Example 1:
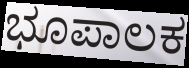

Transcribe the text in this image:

ಭೂಪಾಲಕ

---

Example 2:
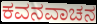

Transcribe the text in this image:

ಕವನವಾಚನ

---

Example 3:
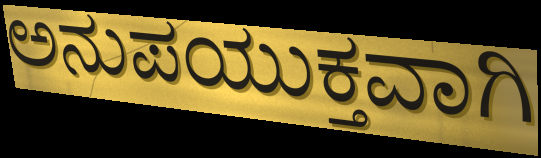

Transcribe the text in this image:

ಅನುಪಯುಕ್ತವಾಗಿ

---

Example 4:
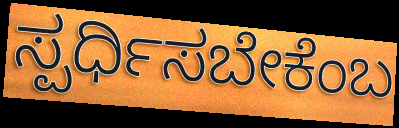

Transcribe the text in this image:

ಸ್ಪರ್ಧಿಸಬೇಕೆಂಬ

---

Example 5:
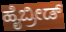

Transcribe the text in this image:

ಹೈಬ್ರೀಡ್